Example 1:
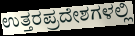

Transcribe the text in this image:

ಉತ್ತರಪ್ರದೇಶಗಳಲ್ಲಿ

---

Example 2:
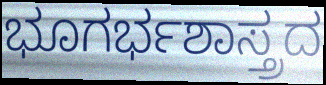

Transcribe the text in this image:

ಭೂಗರ್ಭಶಾಸ್ತ್ರದ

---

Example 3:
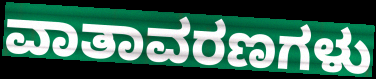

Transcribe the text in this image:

ವಾತಾವರಣಗಳು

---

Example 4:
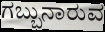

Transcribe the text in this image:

ಗಬ್ಬುನಾರುವ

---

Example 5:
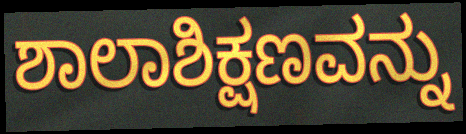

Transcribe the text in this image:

ಶಾಲಾಶಿಕ್ಷಣವನ್ನು